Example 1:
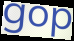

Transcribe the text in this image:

gop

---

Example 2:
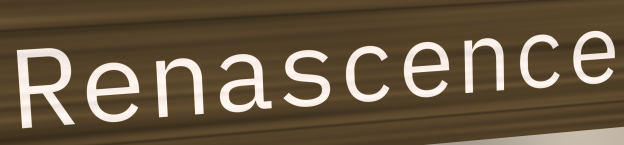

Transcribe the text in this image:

Renascence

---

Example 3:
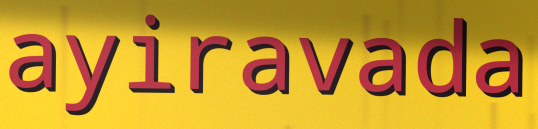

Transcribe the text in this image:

ayiravada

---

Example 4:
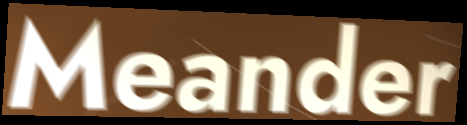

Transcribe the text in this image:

Meander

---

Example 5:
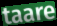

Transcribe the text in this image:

taare